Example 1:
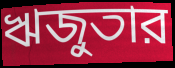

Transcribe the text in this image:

ঋজুতার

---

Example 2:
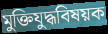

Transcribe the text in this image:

মুক্তিযুদ্ধবিষয়ক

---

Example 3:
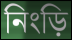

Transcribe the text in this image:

নিংড়ি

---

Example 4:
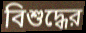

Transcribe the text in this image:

বিশুদ্ধের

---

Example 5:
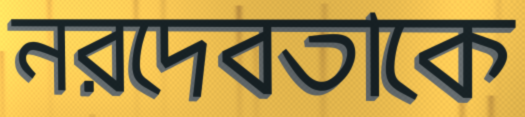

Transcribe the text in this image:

নরদেবতাকে